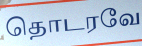
தொடரவே